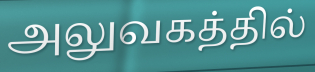
அலுவகத்தில்